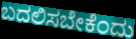
ಬದಲಿಸಬೇಕೆಂದು